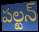
పల్టన్